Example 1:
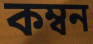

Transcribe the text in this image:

কম্বন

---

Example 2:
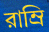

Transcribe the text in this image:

রাম্রি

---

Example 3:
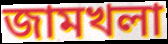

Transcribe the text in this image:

জামখলা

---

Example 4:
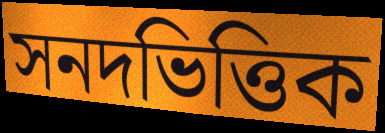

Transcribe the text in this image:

সনদভিত্তিক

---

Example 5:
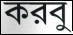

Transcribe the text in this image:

করবু